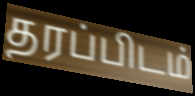
தரப்பிடம்